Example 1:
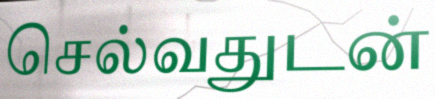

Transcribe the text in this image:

செல்வதுடன்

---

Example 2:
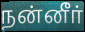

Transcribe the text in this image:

நன்னீர்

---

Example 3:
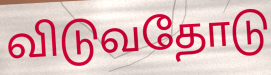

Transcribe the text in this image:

விடுவதோடு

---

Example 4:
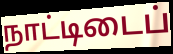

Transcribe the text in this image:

நாட்டிடைப்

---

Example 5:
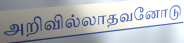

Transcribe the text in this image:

அறிவில்லாதவனோடு